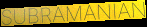
SUBRAMANIAN